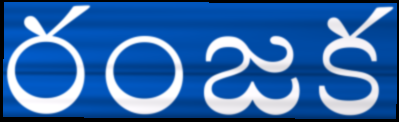
రంజక